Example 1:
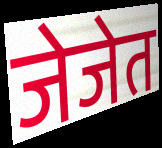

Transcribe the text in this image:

जेजेत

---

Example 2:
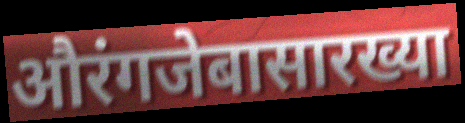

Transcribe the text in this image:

औरंगजेबासारख्या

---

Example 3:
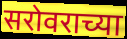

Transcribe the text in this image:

सरोवराच्या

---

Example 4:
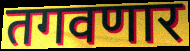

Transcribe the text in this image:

तगवणार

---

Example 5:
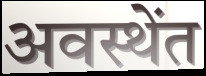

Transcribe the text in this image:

अवस्थेंत